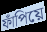
ফাঁপিয়ে